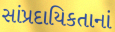
સાંપ્રદાયિકતાનાં